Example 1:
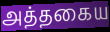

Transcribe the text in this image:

அத்தகைய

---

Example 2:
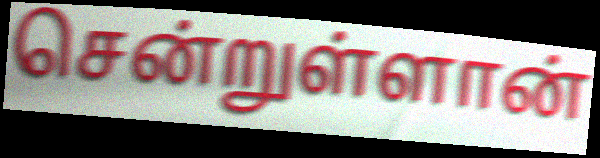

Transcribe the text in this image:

சென்றுள்ளான்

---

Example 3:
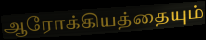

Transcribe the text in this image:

ஆரோக்கியத்தையும்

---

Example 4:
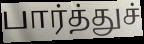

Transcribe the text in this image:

பார்த்துச்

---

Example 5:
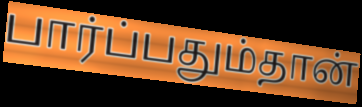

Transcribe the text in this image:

பார்ப்பதும்தான்